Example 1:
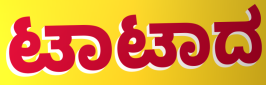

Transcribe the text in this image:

ಟಾಟಾದ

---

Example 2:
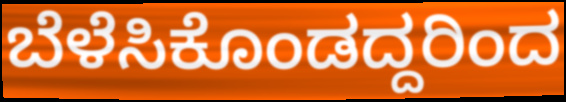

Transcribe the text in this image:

ಬೆಳೆಸಿಕೊಂಡದ್ದರಿಂದ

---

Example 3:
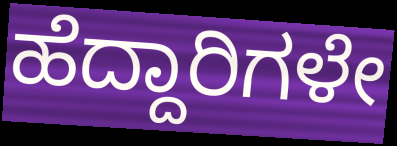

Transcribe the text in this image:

ಹೆದ್ದಾರಿಗಳೇ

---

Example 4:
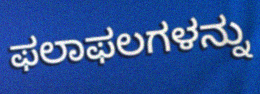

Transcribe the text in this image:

ಫಲಾಫಲಗಳನ್ನು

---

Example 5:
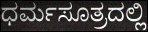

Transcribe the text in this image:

ಧರ್ಮಸೂತ್ರದಲ್ಲಿ